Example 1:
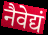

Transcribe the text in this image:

नैवेद्यं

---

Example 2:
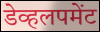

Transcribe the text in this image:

डेव्‍हलपमेंट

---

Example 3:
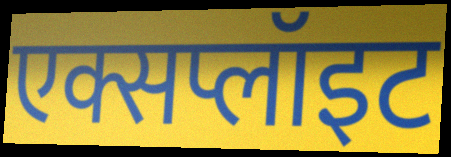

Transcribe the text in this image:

एक्सप्लॉइट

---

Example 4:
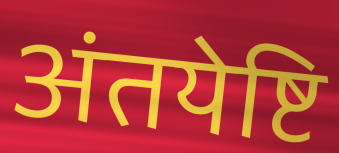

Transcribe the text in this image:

अंतयेष्टि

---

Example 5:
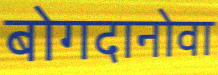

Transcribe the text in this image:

बोगदानोवा